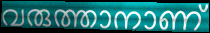
വരുത്താനാണ്